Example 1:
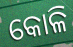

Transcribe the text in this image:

କୋଳି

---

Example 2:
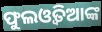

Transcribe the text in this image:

ଫୁଲଓ୍ୱତିଆଙ୍କ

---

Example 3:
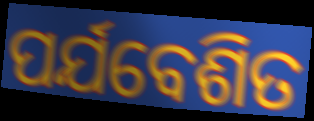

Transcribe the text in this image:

ପର୍ଯବେଶିତ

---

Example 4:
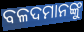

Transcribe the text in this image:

ବଳଦମାନଙ୍କୁ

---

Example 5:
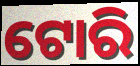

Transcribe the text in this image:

ଟୋରି